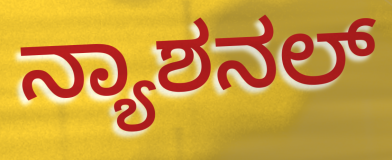
ನ್ಯಾಶನಲ್